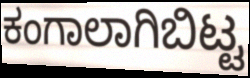
ಕಂಗಾಲಾಗಿಬಿಟ್ಟ